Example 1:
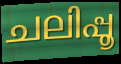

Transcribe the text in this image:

ചലിപ്പൂ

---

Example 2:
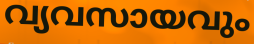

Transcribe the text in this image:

വ്യവസായവും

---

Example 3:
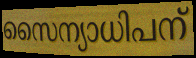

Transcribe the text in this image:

സൈന്യാധിപന്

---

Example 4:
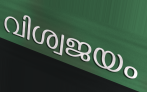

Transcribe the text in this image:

വിശ്വജയം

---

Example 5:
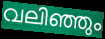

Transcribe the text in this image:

വലിഞ്ഞും